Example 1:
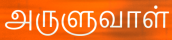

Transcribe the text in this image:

அருளுவாள்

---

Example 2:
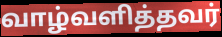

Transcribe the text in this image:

வாழ்வளித்தவர்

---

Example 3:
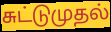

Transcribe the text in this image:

சுட்டுமுதல்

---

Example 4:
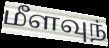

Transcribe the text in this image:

மீளவுந்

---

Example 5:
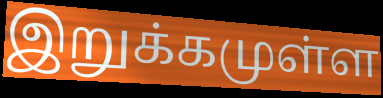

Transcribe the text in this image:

இறுக்கமுள்ள